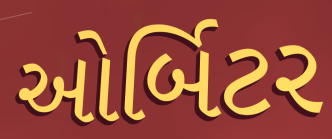
ઓર્બિટર